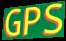
GPS